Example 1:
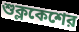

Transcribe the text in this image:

শুক্লকেশের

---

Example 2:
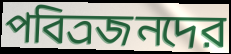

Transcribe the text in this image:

পবিত্রজনদের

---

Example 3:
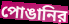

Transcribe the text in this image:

পোঙানির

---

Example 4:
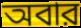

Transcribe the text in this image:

অবার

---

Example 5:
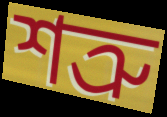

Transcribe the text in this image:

শত্রু